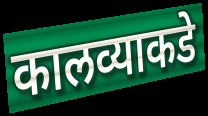
कालव्याकडे